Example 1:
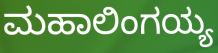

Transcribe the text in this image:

ಮಹಾಲಿಂಗಯ್ಯ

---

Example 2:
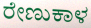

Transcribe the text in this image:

ರೇಣುಕಾಳ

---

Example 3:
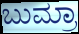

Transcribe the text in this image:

ಬುಮ್ರಾ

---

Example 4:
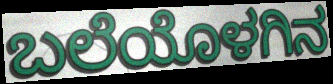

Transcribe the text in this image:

ಬಲೆಯೊಳಗಿನ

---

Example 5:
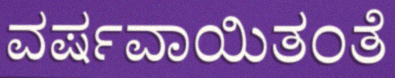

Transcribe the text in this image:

ವರ್ಷವಾಯಿತಂತೆ